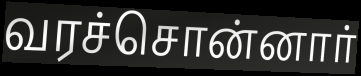
வரச்சொன்னார்